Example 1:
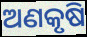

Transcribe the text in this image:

ଅଣକୃଷି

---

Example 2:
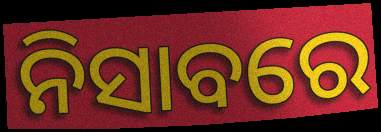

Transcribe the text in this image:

ନିସାବରେ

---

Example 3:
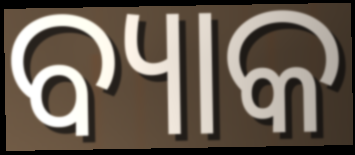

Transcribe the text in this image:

ବ୍ୟାକ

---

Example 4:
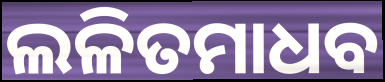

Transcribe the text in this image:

ଲଳିତମାଧବ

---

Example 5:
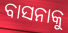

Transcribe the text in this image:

ବାସନାକୁ